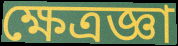
ক্ষেত্রজ্ঞা